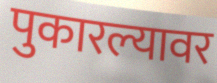
पुकारल्यावर